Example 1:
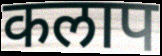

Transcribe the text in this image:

कलाप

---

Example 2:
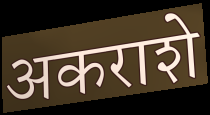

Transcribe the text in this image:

अकराशे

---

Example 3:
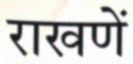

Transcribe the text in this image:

राखणें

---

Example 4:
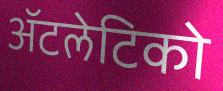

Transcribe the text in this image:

ॲटलेटिको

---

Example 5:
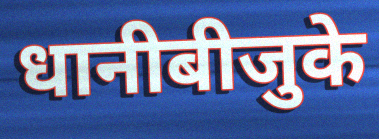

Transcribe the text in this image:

धानीबीजुके